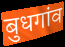
बुधगांव